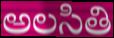
అలసితి